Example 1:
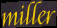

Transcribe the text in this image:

miller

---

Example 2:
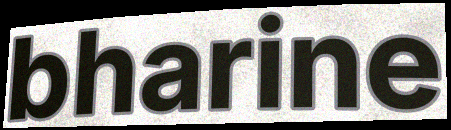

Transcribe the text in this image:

bharine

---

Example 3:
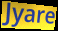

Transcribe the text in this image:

Jyare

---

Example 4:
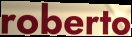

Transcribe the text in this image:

roberto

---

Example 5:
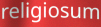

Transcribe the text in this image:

religiosum